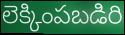
లెక్కింపబడిరి